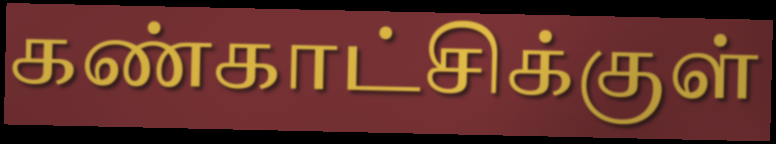
கண்காட்சிக்குள்